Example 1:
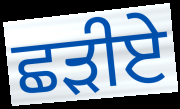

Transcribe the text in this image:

ਛੜੀਏ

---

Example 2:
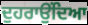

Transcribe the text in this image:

ਦੁਹਰਾਉਂਦਿਆ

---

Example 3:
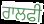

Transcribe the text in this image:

ਰਾਲਫੀ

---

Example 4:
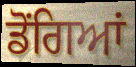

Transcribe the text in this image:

ਡੋਂਗਿਆਂ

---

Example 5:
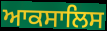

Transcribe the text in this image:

ਆਕਸਾਲਿਸ